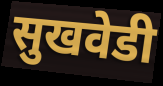
सुखवेडी